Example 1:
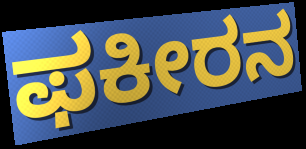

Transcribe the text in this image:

ಫಕೀರನ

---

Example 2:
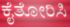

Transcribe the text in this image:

ಕೈತೋರಿಸಿ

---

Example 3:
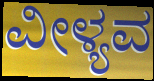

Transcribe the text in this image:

ವೀಳ್ಯವ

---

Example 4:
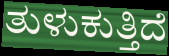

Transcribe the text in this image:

ತುಳುಕುತ್ತಿದೆ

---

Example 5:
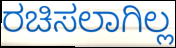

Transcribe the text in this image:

ರಚಿಸಲಾಗಿಲ್ಲ